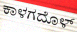
ಕಾಳಗದೊಳ್